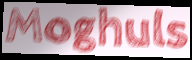
Moghuls